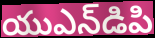
యుఎన్‌డిపి